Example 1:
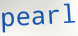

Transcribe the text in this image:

pearl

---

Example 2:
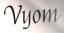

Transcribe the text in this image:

Vyom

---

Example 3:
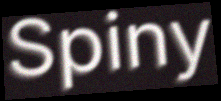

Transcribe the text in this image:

Spiny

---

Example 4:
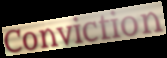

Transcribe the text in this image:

Conviction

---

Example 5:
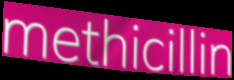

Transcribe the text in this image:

methicillin